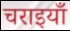
चराइयाँ